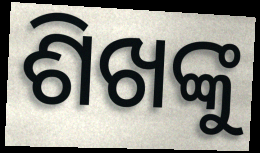
ଶିଖଙ୍କୁ